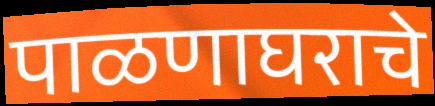
पाळणाघराचे